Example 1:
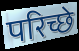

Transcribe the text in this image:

परिच्छे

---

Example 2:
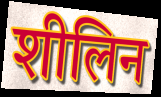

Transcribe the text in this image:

शीलिन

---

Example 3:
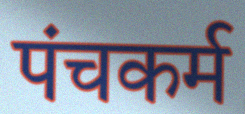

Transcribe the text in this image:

पंचकर्म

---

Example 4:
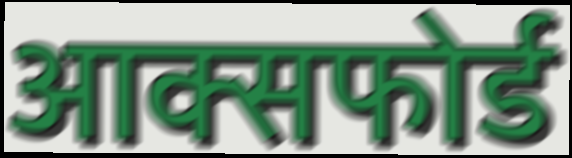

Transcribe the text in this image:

आक्सफोर्ड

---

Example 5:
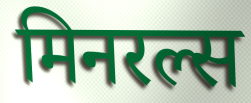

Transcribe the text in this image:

मिनरल्स